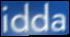
idda